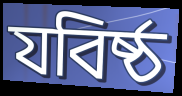
যবিষ্ঠ